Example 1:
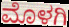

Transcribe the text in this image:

ಮೊಳಗಿ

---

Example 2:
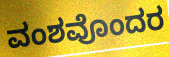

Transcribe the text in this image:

ವಂಶವೊಂದರ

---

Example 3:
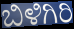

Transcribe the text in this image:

ಬಿಳಿಗಿರಿ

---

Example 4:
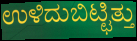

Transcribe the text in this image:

ಉಳಿದುಬಿಟ್ಟಿತ್ತು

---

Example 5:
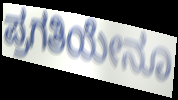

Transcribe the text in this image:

ಪ್ರಗತಿಯೇನೂ